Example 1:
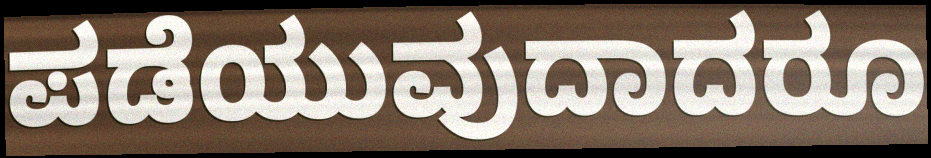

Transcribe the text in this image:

ಪಡೆಯುವುದಾದರೂ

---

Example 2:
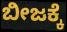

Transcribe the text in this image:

ಬೀಜಕ್ಕೆ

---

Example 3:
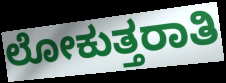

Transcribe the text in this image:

ಲೋಕುತ್ತರಾತಿ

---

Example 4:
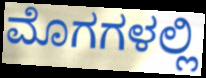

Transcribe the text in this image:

ಮೊಗಗಳಲ್ಲಿ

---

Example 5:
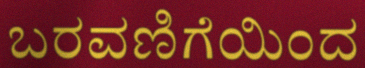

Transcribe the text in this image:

ಬರವಣಿಗೆಯಿಂದ